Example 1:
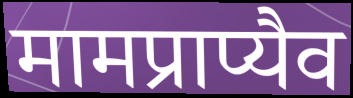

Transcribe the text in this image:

मामप्राप्यैव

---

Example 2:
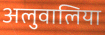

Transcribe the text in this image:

अलुवालिया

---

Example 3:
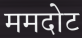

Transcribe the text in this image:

ममदोट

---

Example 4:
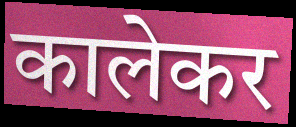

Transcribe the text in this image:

कालेकर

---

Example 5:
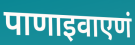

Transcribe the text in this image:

पाणाइवाएणं